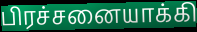
பிரச்சனையாக்கி